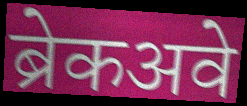
ब्रेकअवे